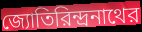
জ্যোতিরিন্দ্রনাথের